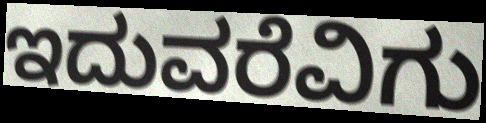
ಇದುವರೆವಿಗು